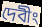
দেবীং